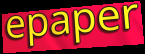
epaper